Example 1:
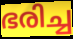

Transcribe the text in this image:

ഭരിച്ച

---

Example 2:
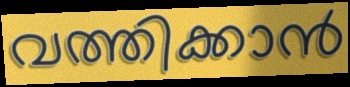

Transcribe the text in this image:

വത്തിക്കാൻ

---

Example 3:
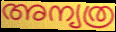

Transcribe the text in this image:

അന്യത്ര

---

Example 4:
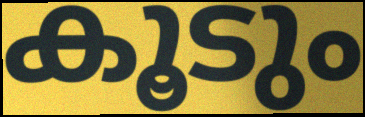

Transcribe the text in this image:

കൂടും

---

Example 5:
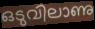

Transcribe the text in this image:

ഒടുവിലാണു